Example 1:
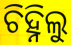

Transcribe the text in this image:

ଚିହ୍ନିଲୁ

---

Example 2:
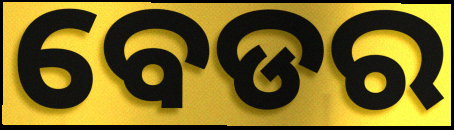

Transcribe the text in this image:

ବେଡର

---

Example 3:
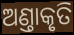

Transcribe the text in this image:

ଅଣ୍ତାକୃତି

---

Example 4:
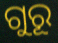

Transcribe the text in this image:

ଗୁରୂ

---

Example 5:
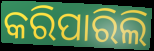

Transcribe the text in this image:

କରିପାରିଲି